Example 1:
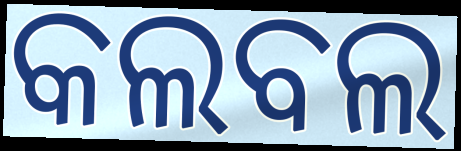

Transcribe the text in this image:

କଲବଲ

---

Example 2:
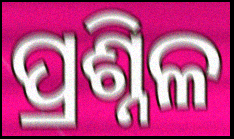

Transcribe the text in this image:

ପ୍ରଶ୍ନିଳ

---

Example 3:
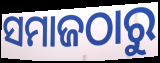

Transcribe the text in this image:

ସମାଜଠାରୁ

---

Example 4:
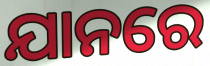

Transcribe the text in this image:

ଯାନରେ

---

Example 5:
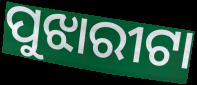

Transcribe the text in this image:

ପୁଝାରୀଟା